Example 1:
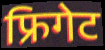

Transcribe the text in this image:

फ्रिगेट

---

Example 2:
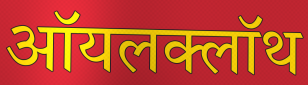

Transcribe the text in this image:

ऑयलक्लॉथ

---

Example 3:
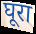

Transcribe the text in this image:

घूरा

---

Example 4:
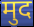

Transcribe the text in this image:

मुद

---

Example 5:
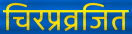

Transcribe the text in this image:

चिरप्रव्रजित